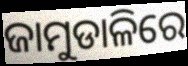
ଜାମୁଡାଳିରେ